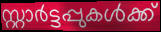
സ്റ്റാർട്ടപ്പുകൾക്ക്